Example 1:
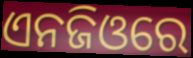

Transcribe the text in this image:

ଏନଜିଓରେ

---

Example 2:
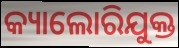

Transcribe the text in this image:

କ୍ୟାଲୋରିଯୁକ୍ତ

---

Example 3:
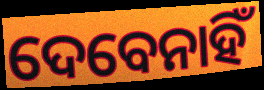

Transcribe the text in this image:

ଦେବେନାହିଁ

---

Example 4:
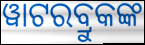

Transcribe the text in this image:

ୱାଟରବ୍ରୁକଙ୍କ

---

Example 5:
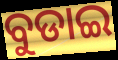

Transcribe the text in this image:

ବୁଡାଇ